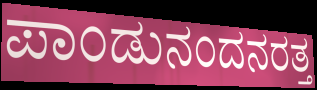
ಪಾಂಡುನಂದನರತ್ತ